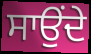
ਸਾਉਂਦੇ